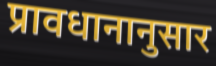
प्रावधानानुसार